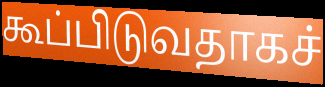
கூப்பிடுவதாகச்